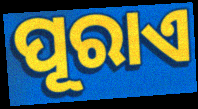
ପୂରାଏ